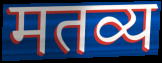
मतव्य